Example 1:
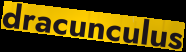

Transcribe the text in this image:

dracunculus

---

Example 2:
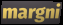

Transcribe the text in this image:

margni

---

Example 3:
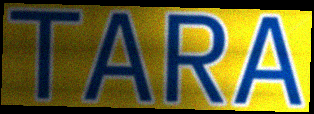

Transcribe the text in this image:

TARA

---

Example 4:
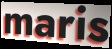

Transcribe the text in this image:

maris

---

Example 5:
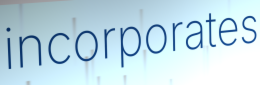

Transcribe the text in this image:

incorporates